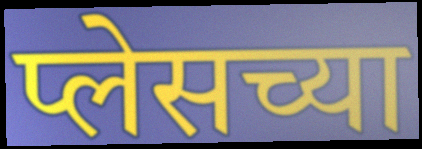
प्लेसच्या